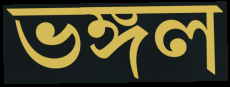
ভঙ্গল